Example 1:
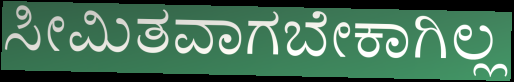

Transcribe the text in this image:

ಸೀಮಿತವಾಗಬೇಕಾಗಿಲ್ಲ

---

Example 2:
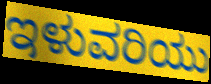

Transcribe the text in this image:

ಇಳುವರಿಯು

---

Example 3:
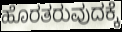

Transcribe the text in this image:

ಹೊರತರುವುದಕ್ಕೆ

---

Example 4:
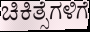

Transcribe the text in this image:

ಚಿಕಿತ್ಸೆಗಳಿಗೆ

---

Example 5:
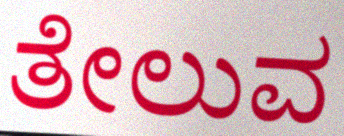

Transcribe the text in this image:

ತೇಲುವ